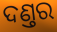
ଦଣ୍ତର